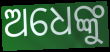
ଅଧେଙ୍କୁ